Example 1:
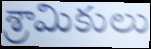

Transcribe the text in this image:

శ్రామికులు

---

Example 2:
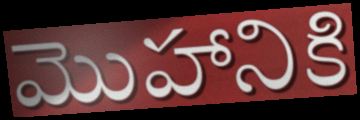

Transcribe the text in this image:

మొహానికి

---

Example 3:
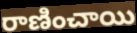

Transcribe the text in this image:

రాణించాయి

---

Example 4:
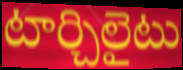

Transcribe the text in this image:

టార్చిలైటు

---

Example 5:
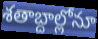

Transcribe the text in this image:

శతాబ్దాల్లోనూ